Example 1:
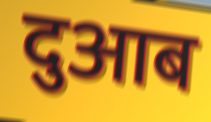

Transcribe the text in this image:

दुआब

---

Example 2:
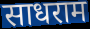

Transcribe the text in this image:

साधराम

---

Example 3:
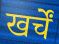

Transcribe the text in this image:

खर्चें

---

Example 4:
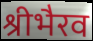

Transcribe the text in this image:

श्रीभैरव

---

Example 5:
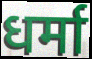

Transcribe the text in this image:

धर्मा